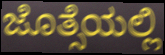
ಜೊತ್ಸೆಯಲ್ಲಿ